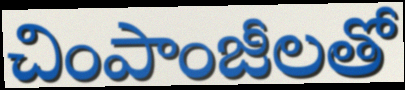
చింపాంజీలతో